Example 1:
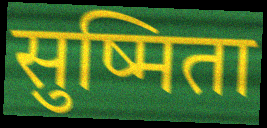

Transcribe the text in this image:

सुष्मिता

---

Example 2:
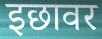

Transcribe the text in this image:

इछावर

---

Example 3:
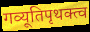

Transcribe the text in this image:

गव्यूतिपृथक्त्व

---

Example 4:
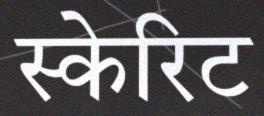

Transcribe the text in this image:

स्केरिट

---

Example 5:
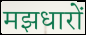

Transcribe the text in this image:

मझधारों